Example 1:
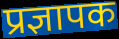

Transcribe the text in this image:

प्रज्ञापक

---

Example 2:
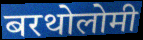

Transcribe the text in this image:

बरथोलोमी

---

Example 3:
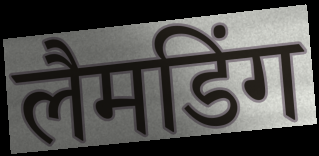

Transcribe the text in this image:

लैमडिंग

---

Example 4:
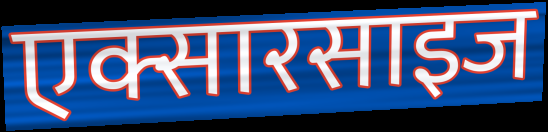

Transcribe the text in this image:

एक्सारसाइज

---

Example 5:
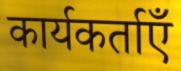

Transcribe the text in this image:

कार्यकर्ताएँ